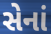
સેનાં